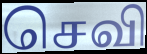
செவி